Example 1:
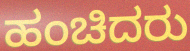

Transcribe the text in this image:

ಹಂಚಿದರು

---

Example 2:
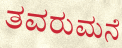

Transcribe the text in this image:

ತವರುಮನೆ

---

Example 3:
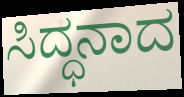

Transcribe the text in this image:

ಸಿದ್ಧನಾದ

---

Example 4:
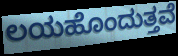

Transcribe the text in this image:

ಲಯಹೊಂದುತ್ತವೆ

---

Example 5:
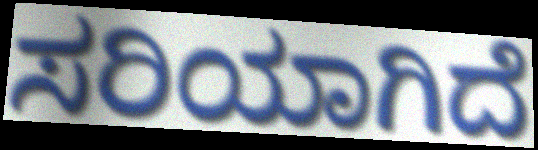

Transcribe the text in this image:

ಸರಿಯಾಗಿದೆ